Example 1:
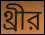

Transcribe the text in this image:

থ্রীর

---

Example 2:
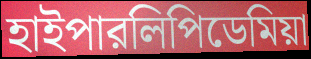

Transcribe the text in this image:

হাইপারলিপিডেমিয়া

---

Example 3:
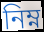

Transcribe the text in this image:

নিম্ন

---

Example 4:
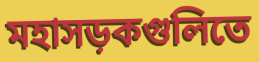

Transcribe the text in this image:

মহাসড়কগুলিতে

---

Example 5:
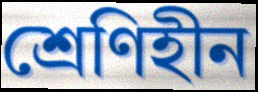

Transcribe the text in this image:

শ্রেণিহীন